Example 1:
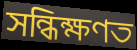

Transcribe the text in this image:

সন্ধিক্ষণত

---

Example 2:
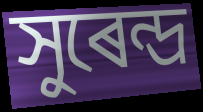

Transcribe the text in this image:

সুৰেন্দ্ৰ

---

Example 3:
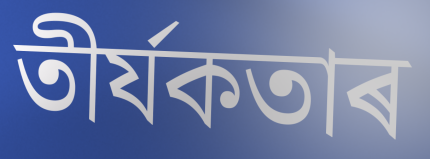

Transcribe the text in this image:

তীৰ্যকতাৰ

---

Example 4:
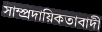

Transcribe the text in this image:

সাম্প্ৰদায়িকতাবাদী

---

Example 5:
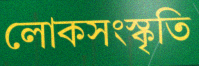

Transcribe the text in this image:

লোকসংস্কৃতি